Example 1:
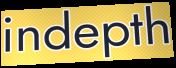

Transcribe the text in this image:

indepth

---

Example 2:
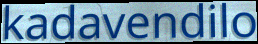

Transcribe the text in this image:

kadavendilo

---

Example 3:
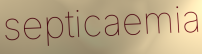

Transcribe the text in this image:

septicaemia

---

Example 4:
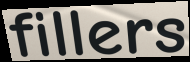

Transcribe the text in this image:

fillers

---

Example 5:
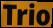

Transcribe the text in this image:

Trio